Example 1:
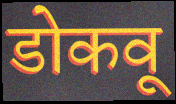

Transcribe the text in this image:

डोकवू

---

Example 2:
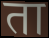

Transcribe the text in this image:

ता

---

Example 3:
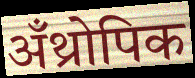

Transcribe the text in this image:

अँथ्रोपिक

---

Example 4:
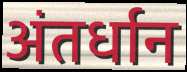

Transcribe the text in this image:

अंतर्धान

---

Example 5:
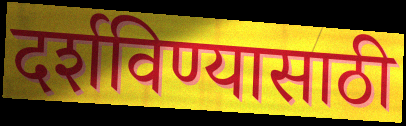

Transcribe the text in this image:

दर्शविण्यासाठी